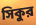
সিকুর